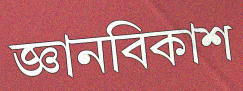
জ্ঞানবিকাশ